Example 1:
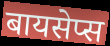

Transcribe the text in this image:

बायसेप्स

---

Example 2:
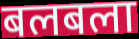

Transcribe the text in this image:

बलबला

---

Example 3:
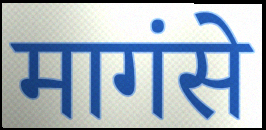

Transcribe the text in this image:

मागंसे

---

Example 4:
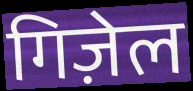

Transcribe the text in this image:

गिज़ेल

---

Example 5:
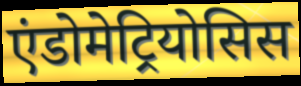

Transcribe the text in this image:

एंडोमेट्रियोसिस